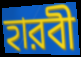
হারবী